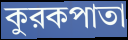
কুরকপাতা